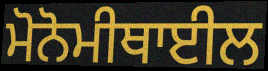
ਮੋਨੋਮੀਥਾਈਲ